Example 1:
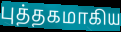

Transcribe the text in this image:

புத்தகமாகிய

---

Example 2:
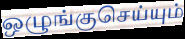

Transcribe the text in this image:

ஒழுங்குசெய்யும்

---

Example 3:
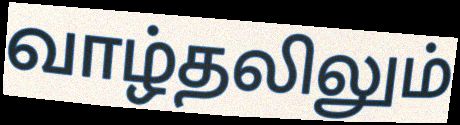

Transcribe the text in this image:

வாழ்தலிலும்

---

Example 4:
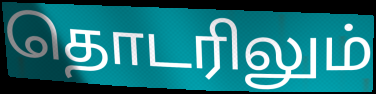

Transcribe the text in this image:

தொடரிலும்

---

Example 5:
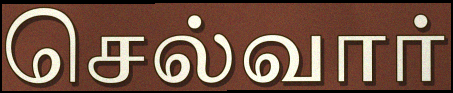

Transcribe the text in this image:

செல்வார்